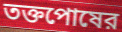
তক্তপোষের